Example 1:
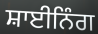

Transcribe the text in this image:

ਸ਼ਾਈਨਿੰਗ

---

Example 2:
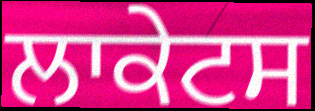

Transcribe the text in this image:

ਲਾਕੇਟਸ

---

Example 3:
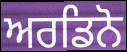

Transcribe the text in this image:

ਅਰਡਿਨੋ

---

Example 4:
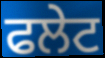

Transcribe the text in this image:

ਫਲੇਟ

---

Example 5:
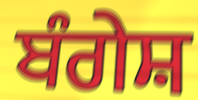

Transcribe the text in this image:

ਬੰਗੇਸ਼